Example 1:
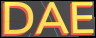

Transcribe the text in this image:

DAE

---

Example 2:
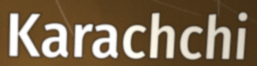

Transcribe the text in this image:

Karachchi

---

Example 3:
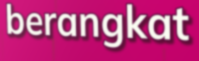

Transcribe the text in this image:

berangkat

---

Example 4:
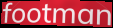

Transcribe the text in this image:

footman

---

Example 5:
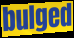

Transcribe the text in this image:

bulged